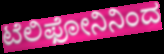
ಟೆಲಿಫೋನಿನಿಂದ